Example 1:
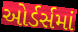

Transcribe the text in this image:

ઓર્ડર્સમાં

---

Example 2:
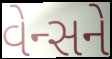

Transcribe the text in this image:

વેન્સને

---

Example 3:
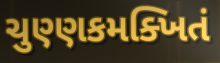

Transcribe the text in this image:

ચુણ્ણકમક્ખિતં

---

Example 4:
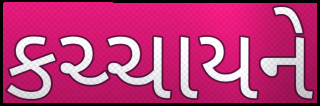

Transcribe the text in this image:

કચ્ચાયને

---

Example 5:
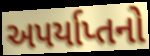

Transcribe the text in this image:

અપર્યાપ્તનો